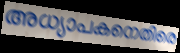
അധ്യാപകനെതിരെ